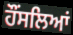
ਹੌਂਸਲਿਆਂ